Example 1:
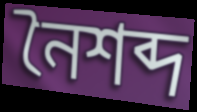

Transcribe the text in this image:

নৈশব্দ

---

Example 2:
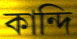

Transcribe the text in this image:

কান্দি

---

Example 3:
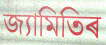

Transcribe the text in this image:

জ্যামিতিৰ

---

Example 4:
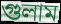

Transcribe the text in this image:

গুলাম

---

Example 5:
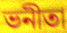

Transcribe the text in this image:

ভনীতা